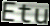
Etu